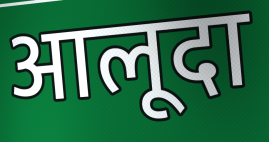
आलूदा